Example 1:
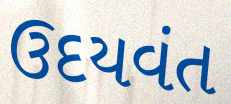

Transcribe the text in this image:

ઉદયવંત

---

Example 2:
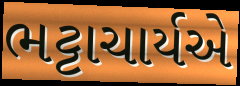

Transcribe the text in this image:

ભટ્ટાચાર્યએ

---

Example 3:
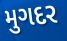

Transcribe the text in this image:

મુગદર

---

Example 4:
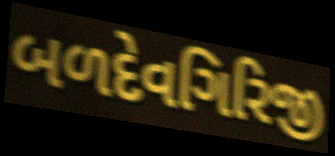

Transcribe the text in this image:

બળદેવગિરિજી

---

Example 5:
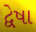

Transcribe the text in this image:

દ્વેષા